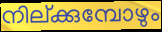
നില്ക്കുമ്പോഴും